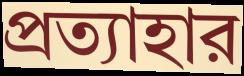
প্রত্যাহার